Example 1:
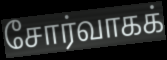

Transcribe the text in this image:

சோர்வாகக்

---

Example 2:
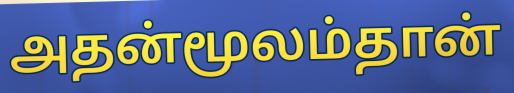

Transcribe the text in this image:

அதன்மூலம்தான்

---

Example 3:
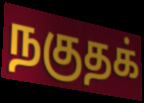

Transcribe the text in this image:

நகுதக்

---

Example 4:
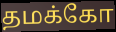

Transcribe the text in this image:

தமக்கோ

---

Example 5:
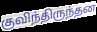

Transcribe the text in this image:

குவிந்திருந்தன